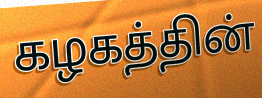
கழகத்தின்